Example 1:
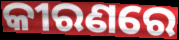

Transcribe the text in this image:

କୀରଣରେ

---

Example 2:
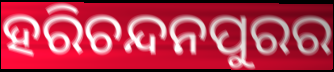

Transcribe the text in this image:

ହରିଚନ୍ଦନପୁରର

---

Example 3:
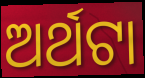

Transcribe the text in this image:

ଅର୍ଥଟା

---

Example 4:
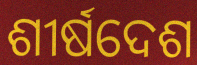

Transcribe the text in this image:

ଶୀର୍ଷଦେଶ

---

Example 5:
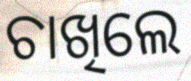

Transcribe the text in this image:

ଚାଖିଲେ